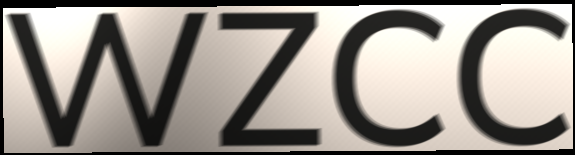
WZCC